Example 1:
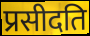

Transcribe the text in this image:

प्रसीदति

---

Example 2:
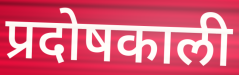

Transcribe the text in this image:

प्रदोषकाली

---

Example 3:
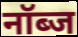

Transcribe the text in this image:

नॉब्ज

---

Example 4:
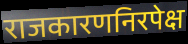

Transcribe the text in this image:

राजकारणनिरपेक्ष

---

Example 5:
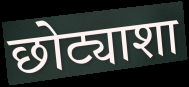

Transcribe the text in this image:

छोट्याशा